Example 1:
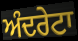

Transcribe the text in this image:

ਅੰਦਰੇਟਾ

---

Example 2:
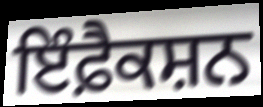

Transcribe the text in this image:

ਇੰਫ਼ੈਕਸ਼ਨ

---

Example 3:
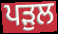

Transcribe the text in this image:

ਪੜੁਲ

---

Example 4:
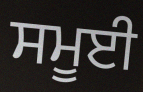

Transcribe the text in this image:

ਸਮੂਈ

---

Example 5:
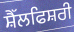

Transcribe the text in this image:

ਸ਼ੈੱਲਫਿਸ਼ਰੀ